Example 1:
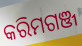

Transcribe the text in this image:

କରିମଗଞ୍ଜ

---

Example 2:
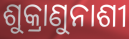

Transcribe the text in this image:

ଶୁକ୍ରାଣୁନାଶୀ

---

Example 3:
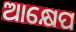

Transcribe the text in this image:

ଆକ୍ଷେପ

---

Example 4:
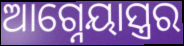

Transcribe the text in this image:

ଆଗ୍ନେୟାସ୍ତ୍ରର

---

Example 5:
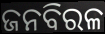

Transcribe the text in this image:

ଜନବିରଳ